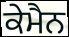
ਕੇਮੈਨ